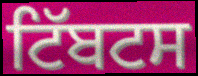
ਟਿੱਬਟਸ